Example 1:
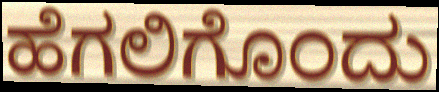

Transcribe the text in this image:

ಹೆಗಲಿಗೊಂದು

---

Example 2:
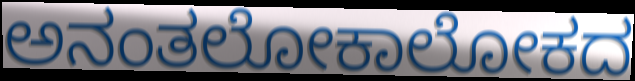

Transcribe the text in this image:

ಅನಂತಲೋಕಾಲೋಕದ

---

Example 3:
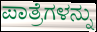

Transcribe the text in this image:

ಪಾತ್ರೆಗಳನ್ನು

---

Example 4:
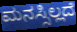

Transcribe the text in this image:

ಮನಸ್ಸಿಲ್ಲದೆ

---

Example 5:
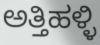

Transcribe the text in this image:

ಅತ್ತಿಹಳ್ಳಿ